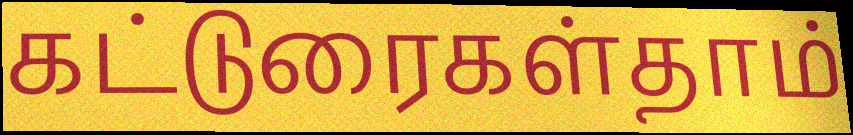
கட்டுரைகள்தாம்